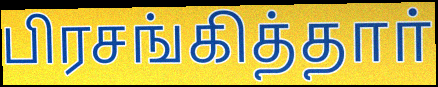
பிரசங்கித்தார்